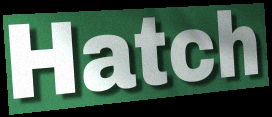
Hatch